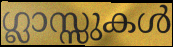
ഗ്ലാസ്സുകൾ